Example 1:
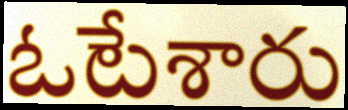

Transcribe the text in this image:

ఓటేశారు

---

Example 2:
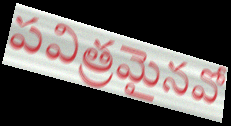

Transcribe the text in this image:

పవిత్రమైనవో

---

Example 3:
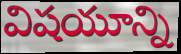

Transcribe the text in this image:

విషయూన్ని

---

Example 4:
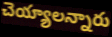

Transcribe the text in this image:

చెయ్యాలన్నారు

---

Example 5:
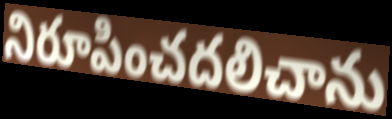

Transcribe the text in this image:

నిరూపించదలిచాను